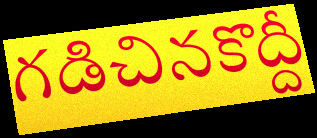
గడిచినకొద్దీ